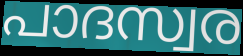
പാദസ്വര